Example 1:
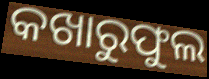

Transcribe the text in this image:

କଖାରୁଫୁଲ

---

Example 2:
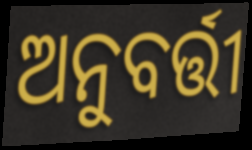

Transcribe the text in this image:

ଅନୁବର୍ତ୍ତୀ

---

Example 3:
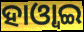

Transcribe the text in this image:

ହାଓ୍ୱାଇ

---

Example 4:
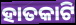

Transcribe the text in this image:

ହାତକାଟି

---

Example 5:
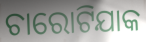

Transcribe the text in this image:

ଚାରୋଟିଯାକ